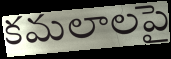
కమలాలపై